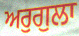
ਅਰੁਗੁਲਾ